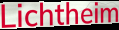
Lichtheim